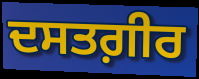
ਦਸਤਗ਼ੀਰ